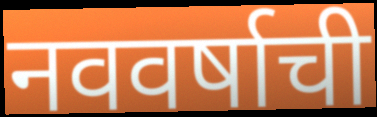
नववर्षाची